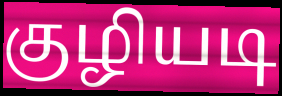
குழியடி